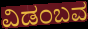
ವಿಡಂಬವ